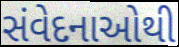
સંવેદનાઓથી